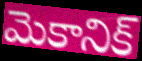
మెకానిక్